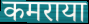
कमराया